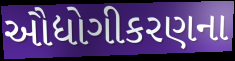
ઔદ્યોગીકરણના